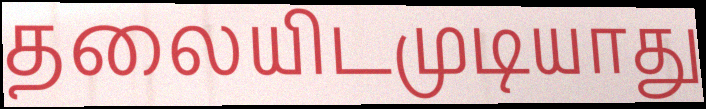
தலையிடமுடியாது